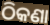
ଠିକଣା